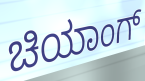
ಚಿಯಾಂಗ್